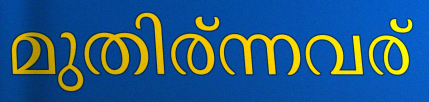
മുതിര്ന്നവര്